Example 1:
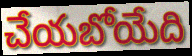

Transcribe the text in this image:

చేయబోయేది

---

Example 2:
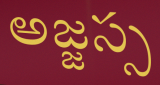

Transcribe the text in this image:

అజ్జస్స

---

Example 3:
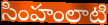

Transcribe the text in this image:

సింహంలాటి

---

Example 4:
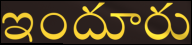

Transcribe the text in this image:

ఇందూరు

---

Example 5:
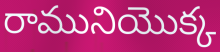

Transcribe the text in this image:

రామునియొక్క